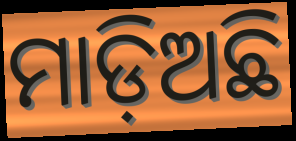
ମାଡ଼ିଅଛି